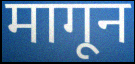
मागून